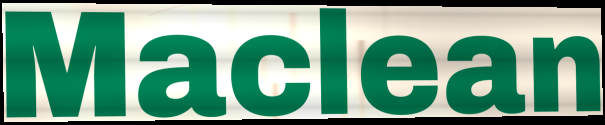
Maclean